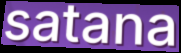
satana